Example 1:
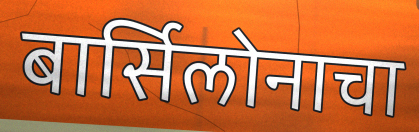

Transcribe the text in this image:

बार्सिलोनाचा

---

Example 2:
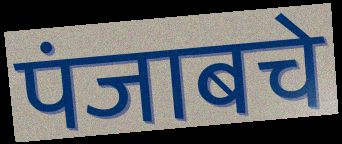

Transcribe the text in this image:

पंजाबचे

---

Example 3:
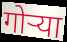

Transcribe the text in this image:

गोऱ्या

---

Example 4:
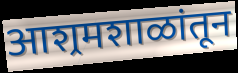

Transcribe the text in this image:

आश्रमशाळांतून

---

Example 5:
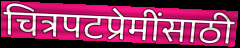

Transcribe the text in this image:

चित्रपटप्रेमींसाठी